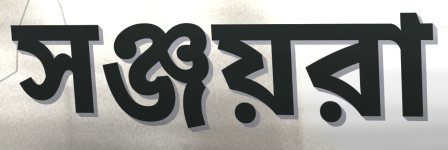
সঞ্জয়রা